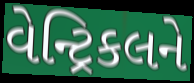
વેન્ટ્રિકલને